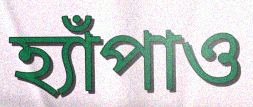
হ্যাঁপাও